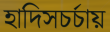
হাদিসচর্চায়